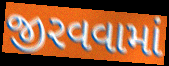
જીરવવામાં